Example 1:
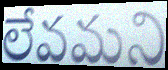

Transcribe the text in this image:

లేవమని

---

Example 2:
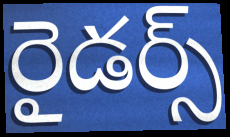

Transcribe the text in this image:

రైడర్స్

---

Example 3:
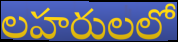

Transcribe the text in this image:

లహరులలో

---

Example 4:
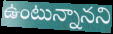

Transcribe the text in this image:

ఉంటున్నానని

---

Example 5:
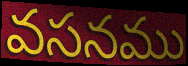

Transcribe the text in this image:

వసనము